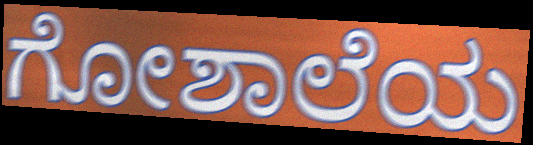
ಗೋಶಾಲೆಯ